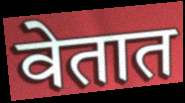
वेतात